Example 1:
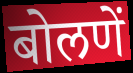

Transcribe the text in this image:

बोलणें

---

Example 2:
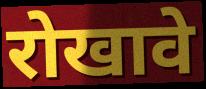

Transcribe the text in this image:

रोखावे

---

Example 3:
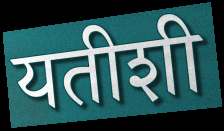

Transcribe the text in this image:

यतीशी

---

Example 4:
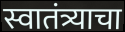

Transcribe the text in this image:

स्‍वातंत्र्याचा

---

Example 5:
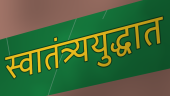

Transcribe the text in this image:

स्वातंत्र्ययुद्धात